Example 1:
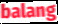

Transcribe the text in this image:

balang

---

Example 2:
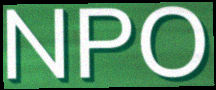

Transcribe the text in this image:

NPO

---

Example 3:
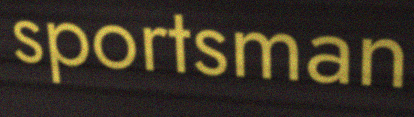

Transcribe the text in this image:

sportsman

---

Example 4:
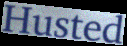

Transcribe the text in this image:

Husted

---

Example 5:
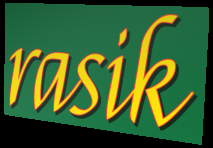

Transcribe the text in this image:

rasik